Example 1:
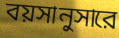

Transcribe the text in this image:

বয়সানুসারে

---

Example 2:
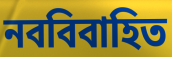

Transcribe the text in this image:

নববিবাহিত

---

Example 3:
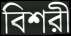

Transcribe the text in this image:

বিশরী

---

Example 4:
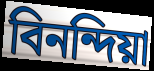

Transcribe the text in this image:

বিনন্দিয়া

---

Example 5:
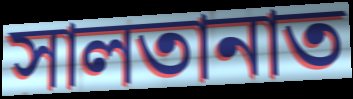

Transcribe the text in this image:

সালতানাত